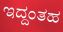
ಇದ್ದಂತಹ